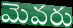
మెవరు